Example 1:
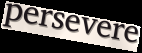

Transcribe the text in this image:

persevere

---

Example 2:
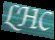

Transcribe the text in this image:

LHC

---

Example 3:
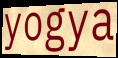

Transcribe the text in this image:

yogya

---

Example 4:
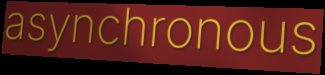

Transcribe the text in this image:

asynchronous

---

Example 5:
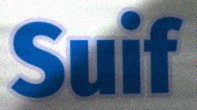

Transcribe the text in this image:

Suif